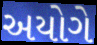
અયોગે